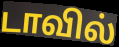
டாவில்